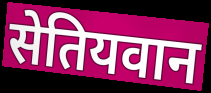
सेतियवान